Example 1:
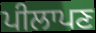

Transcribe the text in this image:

ਪੀਲਾਪਣ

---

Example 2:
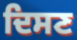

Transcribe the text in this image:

ਦਿਸਣ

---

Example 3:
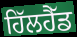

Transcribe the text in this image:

ਹਿੱਲਹੈੱਡ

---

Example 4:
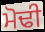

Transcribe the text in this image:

ਮੋਢੀ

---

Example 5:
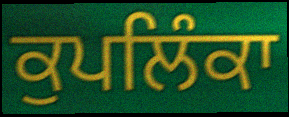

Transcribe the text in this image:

ਕੁਪਲਿੰਕਾ